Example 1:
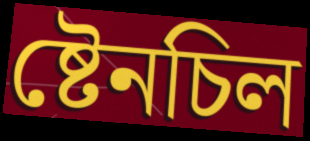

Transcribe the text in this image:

ষ্টেনচিল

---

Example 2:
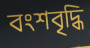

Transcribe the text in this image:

বংশবৃদ্ধি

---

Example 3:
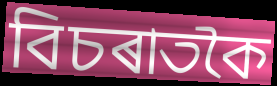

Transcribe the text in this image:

বিচৰাতকৈ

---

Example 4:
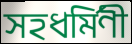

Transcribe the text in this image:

সহধৰ্মিণী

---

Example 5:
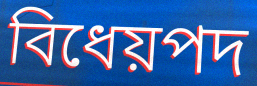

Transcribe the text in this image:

বিধেয়পদ